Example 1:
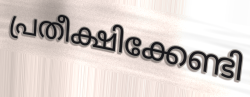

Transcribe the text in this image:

പ്രതീക്ഷിക്കേണ്ടി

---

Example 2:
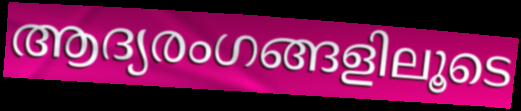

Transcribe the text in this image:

ആദ്യരംഗങ്ങളിലൂടെ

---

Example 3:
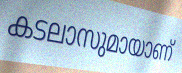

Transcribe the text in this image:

കടലാസുമായാണ്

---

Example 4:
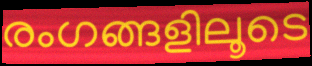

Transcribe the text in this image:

രംഗങ്ങളിലൂടെ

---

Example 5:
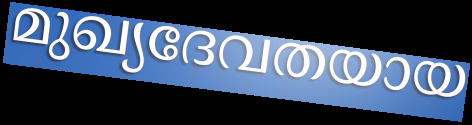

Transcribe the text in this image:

മുഖ്യദേവതയായ